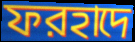
ফরহাদে